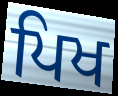
ਪਿਖ